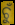
ଚୁଁ